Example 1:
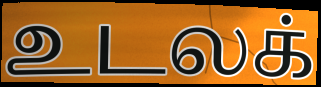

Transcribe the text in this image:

உடலக்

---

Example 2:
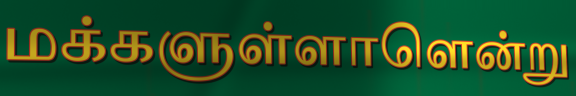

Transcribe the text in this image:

மக்களுள்ளாளென்று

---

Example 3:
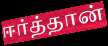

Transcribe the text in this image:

ஈர்த்தான்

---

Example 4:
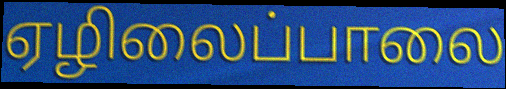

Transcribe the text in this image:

ஏழிலைப்பாலை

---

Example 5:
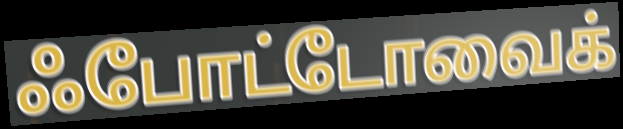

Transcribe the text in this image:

ஃபோட்டோவைக்